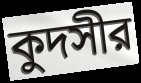
কুদসীর